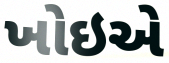
ખોઇએ